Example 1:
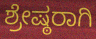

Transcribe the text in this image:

ಶ್ರೇಷ್ಠರಾಗಿ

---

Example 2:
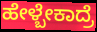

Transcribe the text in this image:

ಹೇಳ್ಬೇಕಾದ್ರೆ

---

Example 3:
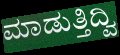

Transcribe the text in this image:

ಮಾಡುತ್ತಿದ್ವಿ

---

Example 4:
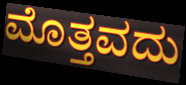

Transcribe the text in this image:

ಮೊತ್ತವದು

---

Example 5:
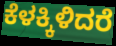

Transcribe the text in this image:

ಕೆಳಕ್ಕಿಳಿದರೆ